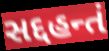
સદ્દહન્તં